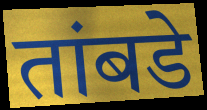
तांबडे